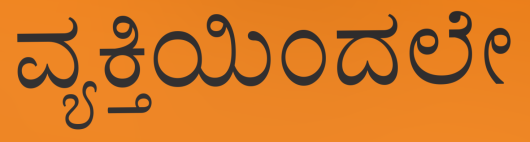
ವ್ಯಕ್ತಿಯಿಂದಲೇ